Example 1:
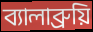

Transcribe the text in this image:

ব্যালাব্রুয়ি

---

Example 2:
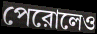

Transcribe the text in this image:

পেরোলেও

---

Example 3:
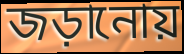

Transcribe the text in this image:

জড়ানোয়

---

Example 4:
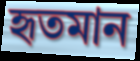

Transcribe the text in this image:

হৃতমান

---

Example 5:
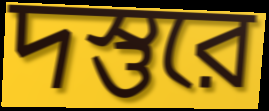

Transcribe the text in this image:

দস্তুরে